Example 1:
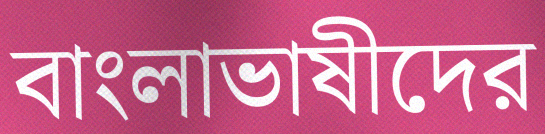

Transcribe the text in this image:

বাংলাভাষীদের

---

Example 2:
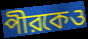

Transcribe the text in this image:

পীরকেও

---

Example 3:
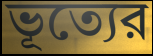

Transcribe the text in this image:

ভূত্যের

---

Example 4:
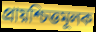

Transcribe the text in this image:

প্রায়শ্চিত্তমূলক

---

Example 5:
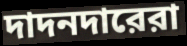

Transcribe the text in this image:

দাদনদারেরা